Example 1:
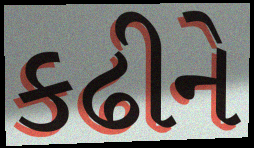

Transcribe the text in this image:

કઢીને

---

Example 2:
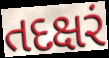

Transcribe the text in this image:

તદક્ષરં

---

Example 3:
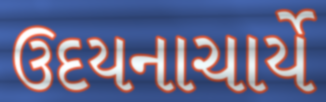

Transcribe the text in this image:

ઉદયનાચાર્યે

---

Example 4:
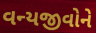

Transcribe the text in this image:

વન્યજીવોને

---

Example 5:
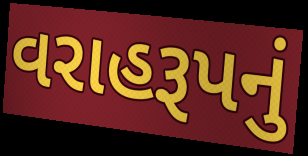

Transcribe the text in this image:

વરાહરૂપનું